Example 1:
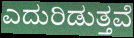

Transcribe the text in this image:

ಎದುರಿಡುತ್ತವೆ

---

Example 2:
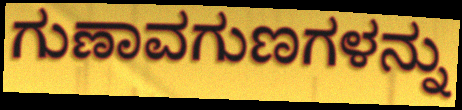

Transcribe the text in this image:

ಗುಣಾವಗುಣಗಳನ್ನು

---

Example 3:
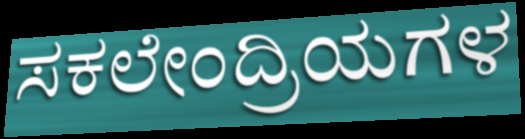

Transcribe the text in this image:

ಸಕಲೇಂದ್ರಿಯಗಳ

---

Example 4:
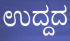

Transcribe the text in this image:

ಉದ್ದದ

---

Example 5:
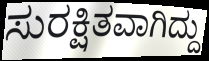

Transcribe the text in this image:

ಸುರಕ್ಷಿತವಾಗಿದ್ದು